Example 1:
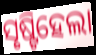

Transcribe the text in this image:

ସୃଷ୍ଟିହେଲା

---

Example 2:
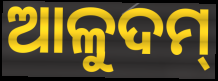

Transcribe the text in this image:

ଆଳୁଦମ୍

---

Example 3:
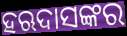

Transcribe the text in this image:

ହଋଦାସଙ୍କର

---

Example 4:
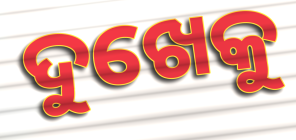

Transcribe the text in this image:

ଦୁଖେକୁ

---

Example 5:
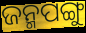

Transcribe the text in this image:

ଜନ୍ମପଙ୍ଗୁ